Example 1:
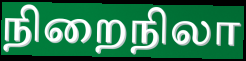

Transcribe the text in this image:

நிறைநிலா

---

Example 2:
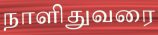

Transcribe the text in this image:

நாளிதுவரை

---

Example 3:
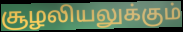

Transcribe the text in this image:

சூழலியலுக்கும்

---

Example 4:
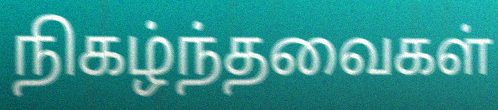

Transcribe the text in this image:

நிகழ்ந்தவைகள்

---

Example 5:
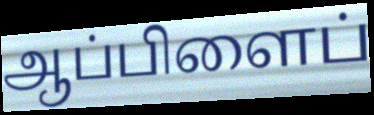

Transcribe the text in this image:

ஆப்பிளைப்